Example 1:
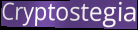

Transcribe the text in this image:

Cryptostegia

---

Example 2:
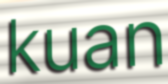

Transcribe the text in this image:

kuan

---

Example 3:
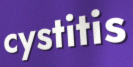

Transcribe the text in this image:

cystitis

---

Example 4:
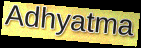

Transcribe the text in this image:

Adhyatma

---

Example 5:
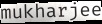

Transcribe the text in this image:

mukharjee